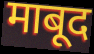
माबूद